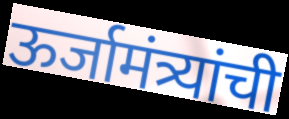
ऊर्जामंत्र्यांची